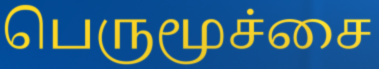
பெருமூச்சை